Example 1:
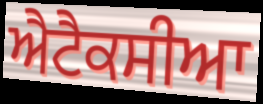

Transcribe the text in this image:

ਐਟੈਕਸੀਆ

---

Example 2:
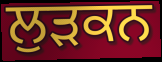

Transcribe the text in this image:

ਲੁੜਕਨ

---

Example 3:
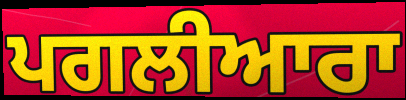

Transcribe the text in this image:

ਪਗਲੀਆਰਾ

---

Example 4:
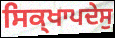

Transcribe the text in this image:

ਸਿਕ੍ਖਾਪਦੇਸੁ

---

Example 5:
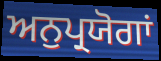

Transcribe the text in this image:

ਅਨੁਪ੍ਰਯੋਗਾਂ